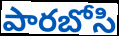
పారబోసి